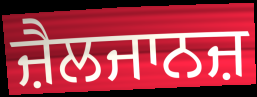
ਜ਼ੈਲਜਾਨਜ਼